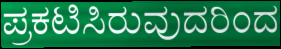
ಪ್ರಕಟಿಸಿರುವುದರಿಂದ